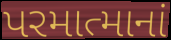
પરમાત્માનાં